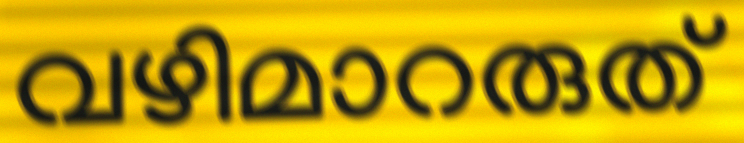
വഴിമാറരുത്